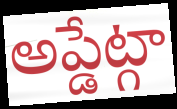
అప్డేట్గా